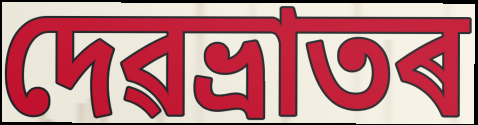
দেৱভ্ৰাতৰ